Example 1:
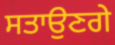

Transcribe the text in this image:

ਸਤਾਉਣਗੇ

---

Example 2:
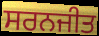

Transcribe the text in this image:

ਸਰਨਜੀਤ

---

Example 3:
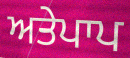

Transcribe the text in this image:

ਅਤੇਪਾਪ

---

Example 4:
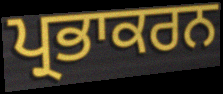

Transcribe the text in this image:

ਪ੍ਰਭਾਕਰਨ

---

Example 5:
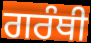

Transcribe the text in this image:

ਗਰੰਥੀ